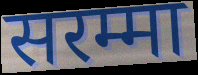
सरम्मा